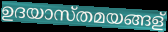
ഉദയാസ്തമയങ്ങള്